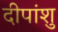
दीपांशु